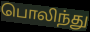
பொலிந்து